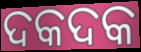
ଦକଦକ